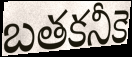
బతకనీకె